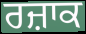
ਰਜ਼ਾਕ